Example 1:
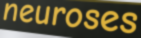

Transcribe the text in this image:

neuroses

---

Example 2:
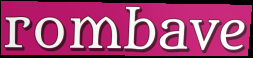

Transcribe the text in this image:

rombave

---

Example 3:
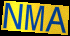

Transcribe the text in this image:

NMA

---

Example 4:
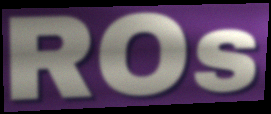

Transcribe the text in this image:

ROs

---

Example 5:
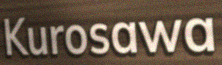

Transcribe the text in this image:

Kurosawa